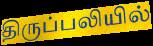
திருப்பலியில்